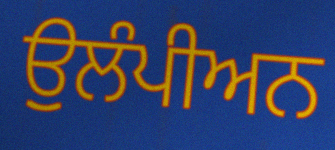
ਉੁਲੰਪੀਅਨ